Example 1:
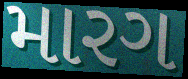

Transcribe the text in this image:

મારગ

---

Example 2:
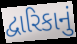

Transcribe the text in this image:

દ્વારિકાનું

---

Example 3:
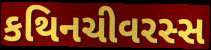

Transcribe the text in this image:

કથિનચીવરસ્સ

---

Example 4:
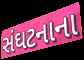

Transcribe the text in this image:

સંઘટનાના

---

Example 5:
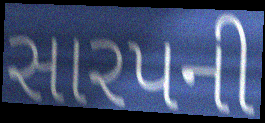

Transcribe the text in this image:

સારપની